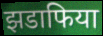
झडाफिया